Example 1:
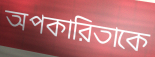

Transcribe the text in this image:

অপকারিতাকে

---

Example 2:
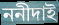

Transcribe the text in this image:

ননীদাই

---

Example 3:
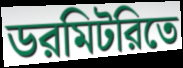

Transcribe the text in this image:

ডরমিটরিতে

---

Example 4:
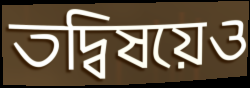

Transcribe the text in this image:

তদ্বিষয়েও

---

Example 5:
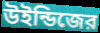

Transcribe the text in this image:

উইন্ডিজের